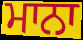
ਮਾਨਾ